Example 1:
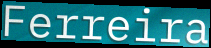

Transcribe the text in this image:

Ferreira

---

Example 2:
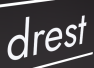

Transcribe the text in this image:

drest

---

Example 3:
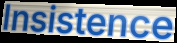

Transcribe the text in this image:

Insistence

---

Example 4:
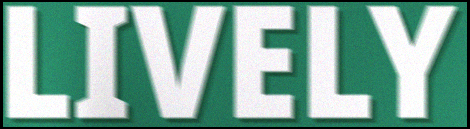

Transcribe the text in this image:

LIVELY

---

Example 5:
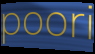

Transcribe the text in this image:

poori